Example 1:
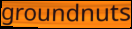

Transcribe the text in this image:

groundnuts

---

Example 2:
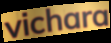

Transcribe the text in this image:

vichara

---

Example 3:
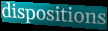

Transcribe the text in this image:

dispositions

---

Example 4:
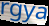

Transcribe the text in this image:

rgya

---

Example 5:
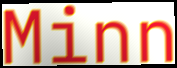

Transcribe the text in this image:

Minn